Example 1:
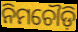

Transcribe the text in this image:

ନିମଚୌଡ଼ି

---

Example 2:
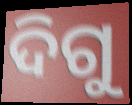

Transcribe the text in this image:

ଦିଗୁ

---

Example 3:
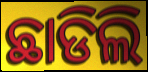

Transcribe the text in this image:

ଛାଡିଲି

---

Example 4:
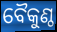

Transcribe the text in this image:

ବୈକୁଣ୍ଠ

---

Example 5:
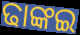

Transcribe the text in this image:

ଢାଙ୍କଇ